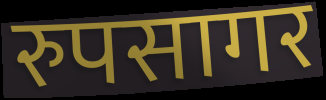
रुपसागर